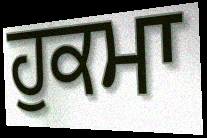
ਹੁਕਮਾ